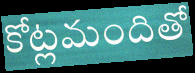
కోట్లమందితో